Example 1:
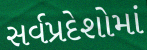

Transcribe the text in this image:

સર્વપ્રદેશોમાં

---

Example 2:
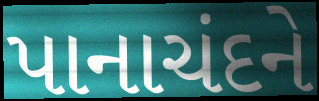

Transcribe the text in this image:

પાનાચંદને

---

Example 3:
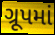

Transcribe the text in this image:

ગ્રૂપમાં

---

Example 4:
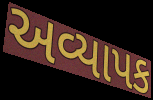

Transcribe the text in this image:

અવ્યાપક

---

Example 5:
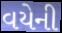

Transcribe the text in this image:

વયેની